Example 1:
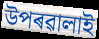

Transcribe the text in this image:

উপৰৱালাই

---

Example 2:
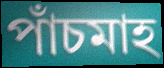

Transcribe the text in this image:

পাঁচমাহ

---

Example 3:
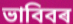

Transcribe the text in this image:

ভাবিবৰ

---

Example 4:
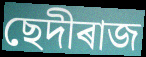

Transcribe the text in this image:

ছেদীৰাজ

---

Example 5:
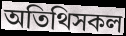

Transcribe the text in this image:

অতিথিসকল